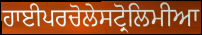
ਹਾਈਪਰਚੋਲੇਸਟ੍ਰੋਲਿਮੀਆ